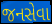
જનસેવા